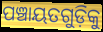
ପଞ୍ଚାୟତଗୁଡ଼ିକୁ